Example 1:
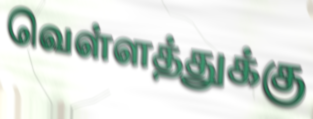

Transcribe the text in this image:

வெள்ளத்துக்கு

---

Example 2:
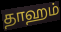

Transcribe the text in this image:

தாஹம்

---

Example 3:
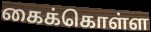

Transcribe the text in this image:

கைக்கொள்ள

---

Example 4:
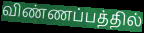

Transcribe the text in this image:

விண்ணப்பத்தில்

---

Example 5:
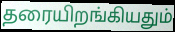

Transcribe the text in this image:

தரையிறங்கியதும்